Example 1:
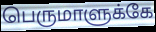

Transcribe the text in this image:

பெருமாளுக்கே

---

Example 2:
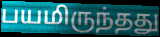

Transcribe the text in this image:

பயமிருந்தது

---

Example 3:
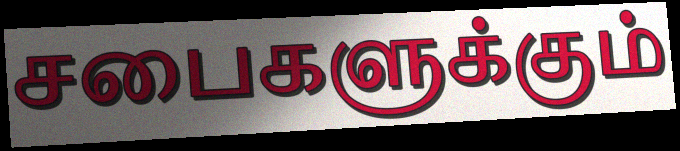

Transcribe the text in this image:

சபைகளுக்கும்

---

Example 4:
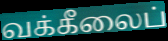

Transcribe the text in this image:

வக்கீலைப்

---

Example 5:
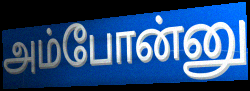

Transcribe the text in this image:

அம்போன்னு